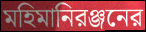
মহিমানিরঞ্জনের